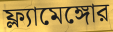
ফ্ল্যামেঙ্গোর